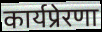
कार्यप्रेरणा